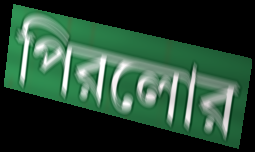
পিরলোর